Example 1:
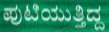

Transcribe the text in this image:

ಪುಟಿಯುತ್ತಿದ್ದ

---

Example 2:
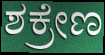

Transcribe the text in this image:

ಶಕ್ರೇಣ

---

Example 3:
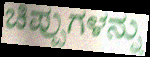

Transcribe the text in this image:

ಚಿಪ್ಪುಗಳನ್ನು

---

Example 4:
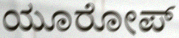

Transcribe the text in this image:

ಯೂರೋಪ್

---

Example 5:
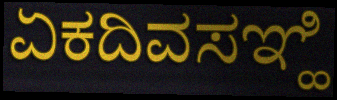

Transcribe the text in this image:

ಏಕದಿವಸಞ್ಹಿ